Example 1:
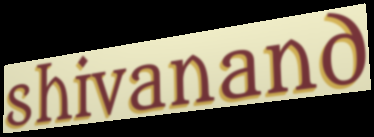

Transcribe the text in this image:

shivanand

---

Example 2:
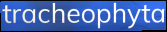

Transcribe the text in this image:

tracheophyta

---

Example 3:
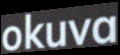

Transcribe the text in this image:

okuva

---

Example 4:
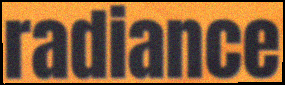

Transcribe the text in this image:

radiance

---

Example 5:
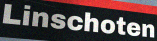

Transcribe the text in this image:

Linschoten